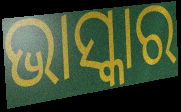
ଭାସ୍କାର